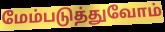
மேம்படுத்துவோம்